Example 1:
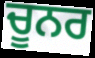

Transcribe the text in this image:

ਚੂਨਰ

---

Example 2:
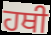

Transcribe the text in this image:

ਹਥੀ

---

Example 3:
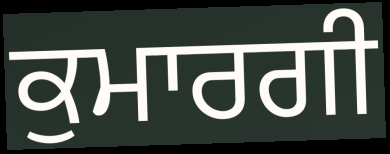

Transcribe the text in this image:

ਕੁਮਾਰਗੀ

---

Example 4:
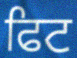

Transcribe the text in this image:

ਫਿਟ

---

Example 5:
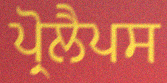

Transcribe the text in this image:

ਪ੍ਰੋਲੈਪਸ